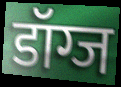
डॉग्ज